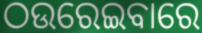
ଠଉରେଇବାରେ